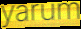
yarum